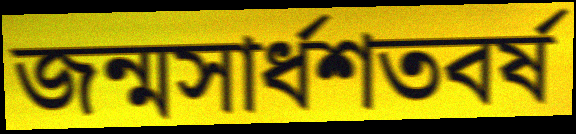
জন্মসার্ধশতবর্ষ